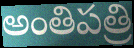
అంతిపత్రి